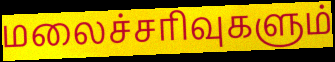
மலைச்சரிவுகளும்